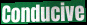
Conducive